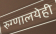
रुग्णालयेही